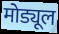
मोड्यूल